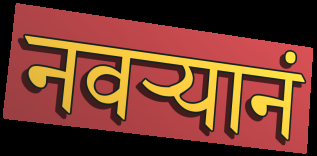
नवऱ्यानं